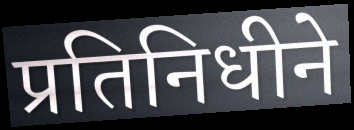
प्रतिनिधीने